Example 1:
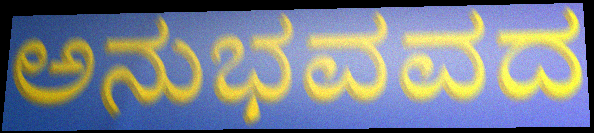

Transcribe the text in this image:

ಅನುಭವವದ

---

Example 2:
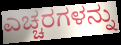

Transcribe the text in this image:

ಎಚ್ಚರಗಳನ್ನು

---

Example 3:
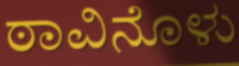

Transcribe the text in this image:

ಠಾವಿನೊಳು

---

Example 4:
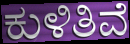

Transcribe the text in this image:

ಕುಳಿತಿವೆ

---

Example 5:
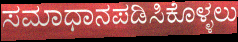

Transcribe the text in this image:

ಸಮಾಧಾನಪಡಿಸಿಕೊಳ್ಳಲು